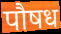
पौषध